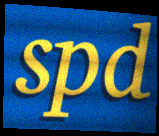
spd